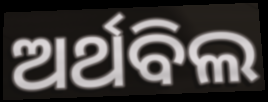
ଅର୍ଥବିଲ